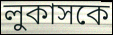
লুকাসকে